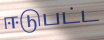
ஈடுபட்ட